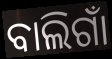
ବାଲିଗାଁ